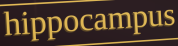
hippocampus